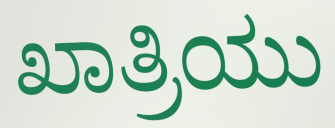
ಖಾತ್ರಿಯು